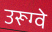
उरूग्वे